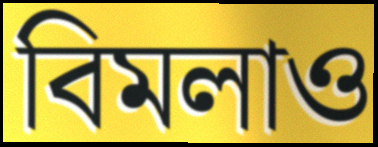
বিমলাও